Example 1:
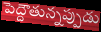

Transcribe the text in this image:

పెద్దౌతున్నప్పుడు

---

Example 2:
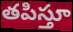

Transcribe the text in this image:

తపిస్తూ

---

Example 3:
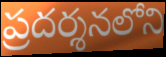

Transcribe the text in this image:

ప్రదర్శనలోని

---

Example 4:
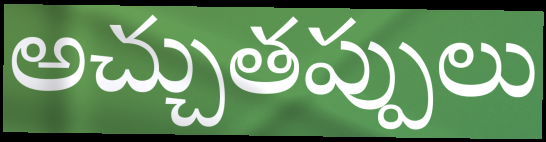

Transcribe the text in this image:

అచ్చుతప్పులు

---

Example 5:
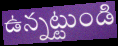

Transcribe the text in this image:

ఉన్నట్టుండి